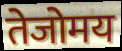
तेजोमय